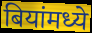
बियांमध्ये